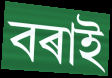
বৰাই